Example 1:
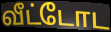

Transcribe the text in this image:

வீட்டோட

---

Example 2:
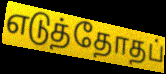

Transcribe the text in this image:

எடுத்தோதப்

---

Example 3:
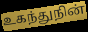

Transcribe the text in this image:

உகந்துநின்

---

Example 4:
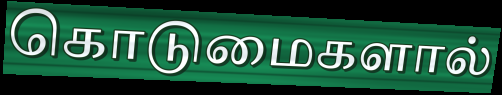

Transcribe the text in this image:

கொடுமைகளால்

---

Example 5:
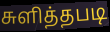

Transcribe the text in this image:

சுளித்தபடி